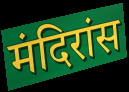
मंदिरांस